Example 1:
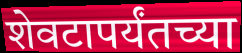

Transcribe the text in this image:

शेवटापर्यंतच्या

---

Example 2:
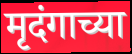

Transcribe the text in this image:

मृदंगाच्या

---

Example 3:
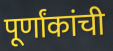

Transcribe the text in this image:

पूर्णांकांची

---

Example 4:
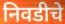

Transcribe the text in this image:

निवडीचे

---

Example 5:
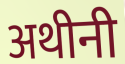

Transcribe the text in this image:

अथीनी